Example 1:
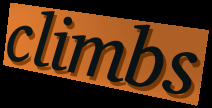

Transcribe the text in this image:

climbs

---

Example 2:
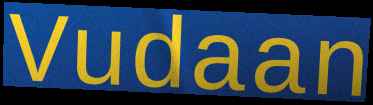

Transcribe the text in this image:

Vudaan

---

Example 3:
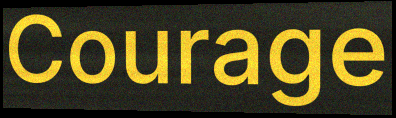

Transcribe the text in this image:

Courage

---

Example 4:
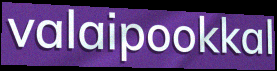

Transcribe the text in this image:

valaipookkal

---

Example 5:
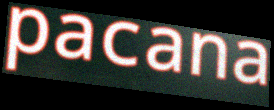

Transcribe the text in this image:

pacana